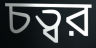
চত্বর